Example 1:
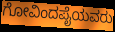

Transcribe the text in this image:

ಗೋವಿಂದಪೈಯವರು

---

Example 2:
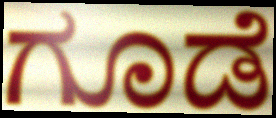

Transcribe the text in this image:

ಗೂಡೆ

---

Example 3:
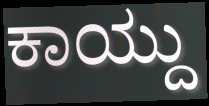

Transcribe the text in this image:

ಕಾಯ್ದು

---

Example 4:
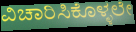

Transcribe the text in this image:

ವಿಚಾರಿಸಿಕೊಳ್ಳಲೇ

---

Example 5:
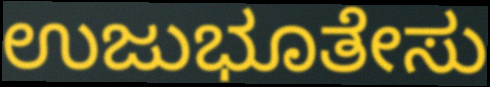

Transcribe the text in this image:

ಉಜುಭೂತೇಸು